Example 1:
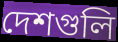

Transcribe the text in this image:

দেশগুলি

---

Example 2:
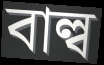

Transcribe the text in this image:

বাল্ব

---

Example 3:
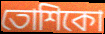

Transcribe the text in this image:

তোশিকো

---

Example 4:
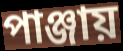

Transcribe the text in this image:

পাঞ্জায়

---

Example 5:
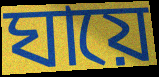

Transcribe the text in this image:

ঘায়ে